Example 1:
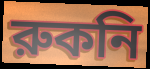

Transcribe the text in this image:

রুকনি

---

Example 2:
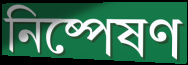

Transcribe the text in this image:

নিষ্পেষণ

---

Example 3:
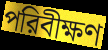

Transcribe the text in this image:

পরিবীক্ষণ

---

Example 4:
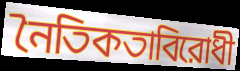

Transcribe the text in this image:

নৈতিকতাবিরোধী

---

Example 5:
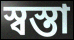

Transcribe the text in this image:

স্বস্তা